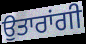
ਉਤਾਰਾਂਗੀ